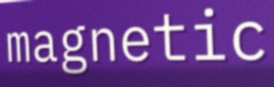
magnetic